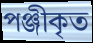
পঞ্জীকৃত